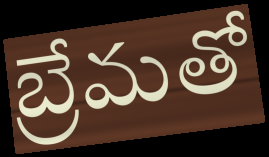
బ్రేమతో